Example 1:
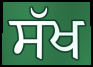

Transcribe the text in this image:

ਸੱਖ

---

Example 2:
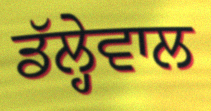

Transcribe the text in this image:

ਡੱਲ੍ਹੇਵਾਲ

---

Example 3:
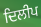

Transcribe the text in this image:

ਦਿਲੀਪ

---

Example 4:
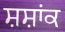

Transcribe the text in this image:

ਸ਼ਸ਼ਾਂਕ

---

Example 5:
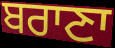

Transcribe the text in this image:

ਬਰਾਣਾ